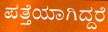
ಪತ್ತೆಯಾಗಿದ್ದರೆ